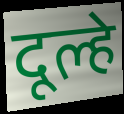
दूल्हे